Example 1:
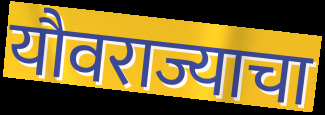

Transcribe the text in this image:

यौवराज्याचा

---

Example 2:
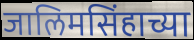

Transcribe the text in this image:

जालिमसिंहाच्या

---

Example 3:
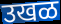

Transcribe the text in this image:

उखळ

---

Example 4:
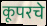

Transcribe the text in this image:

कूपरचे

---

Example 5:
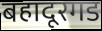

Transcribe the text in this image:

बहादूरगड